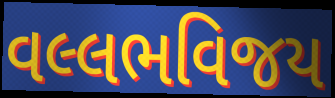
વલ્લભવિજય